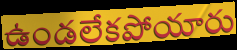
ఉండలేకపోయారు